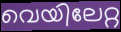
വെയിലേറ്റ